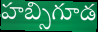
హబ్సిగూడ